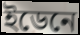
ইডেনে